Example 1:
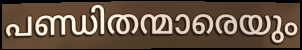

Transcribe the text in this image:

പണ്ഡിതന്മാരെയും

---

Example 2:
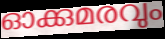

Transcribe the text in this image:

ഓക്കുമരവും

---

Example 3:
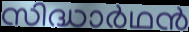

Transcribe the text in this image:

സിദ്ധാർഥൻ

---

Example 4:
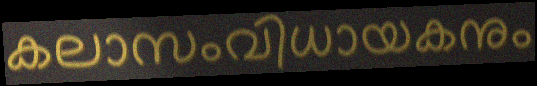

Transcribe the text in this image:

കലാസംവിധായകനും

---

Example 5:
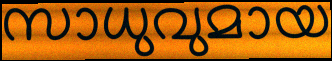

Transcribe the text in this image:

സാധുവുമായ